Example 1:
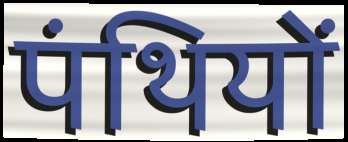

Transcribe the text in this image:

पंथियों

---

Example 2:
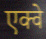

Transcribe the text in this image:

एक्वे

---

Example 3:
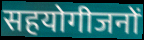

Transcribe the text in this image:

सहयोगीजनों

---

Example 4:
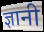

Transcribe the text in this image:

ज्ञानी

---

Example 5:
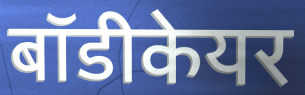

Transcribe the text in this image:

बॉडीकेयर